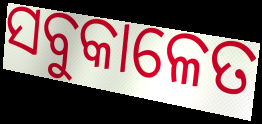
ସବୁକାଳେତ